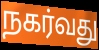
நகர்வது